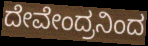
ದೇವೇಂದ್ರನಿಂದ